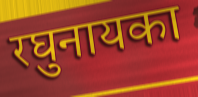
रघुनायका